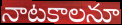
నాటకాలనూ